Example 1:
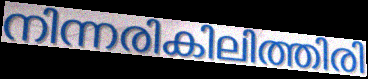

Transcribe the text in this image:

നിന്നരികിലിത്തിരി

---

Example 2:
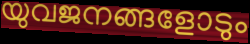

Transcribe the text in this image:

യുവജനങ്ങളോടും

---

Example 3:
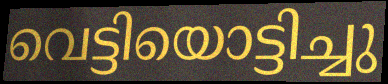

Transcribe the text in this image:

വെട്ടിയൊട്ടിച്ചു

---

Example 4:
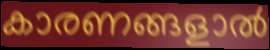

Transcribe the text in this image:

കാരണങ്ങളാൽ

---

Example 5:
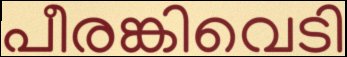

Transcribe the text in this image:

പീരങ്കിവെടി